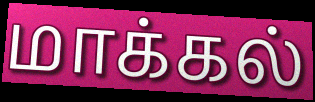
மாக்கல்